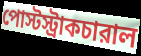
পোস্টস্ট্রাকচারাল